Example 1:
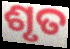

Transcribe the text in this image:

ଶୃତ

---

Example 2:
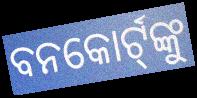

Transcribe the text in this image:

ବନକୋର୍ଟ୍‍ଙ୍କୁ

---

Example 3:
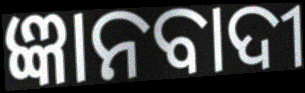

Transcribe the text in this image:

ଜ୍ଞାନବାଦୀ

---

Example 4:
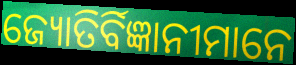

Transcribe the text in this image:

ଜ୍ୟୋତିର୍ବିଜ୍ଞାନୀମାନେ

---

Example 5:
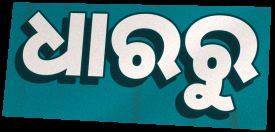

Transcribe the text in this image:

ଧାରରୁ